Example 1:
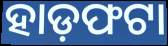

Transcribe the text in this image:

ହାଡ଼ଫଟା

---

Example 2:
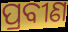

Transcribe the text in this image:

ପ୍ରବୀଣ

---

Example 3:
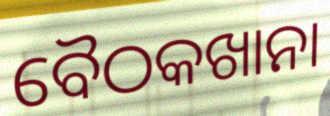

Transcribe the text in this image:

ବୈଠକଖାନା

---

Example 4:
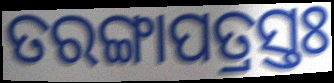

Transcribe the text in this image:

ତରଙ୍ଗାପତ୍ରସ୍ତଃ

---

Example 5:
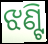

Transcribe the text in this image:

ଝଣ୍ଟି